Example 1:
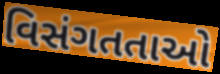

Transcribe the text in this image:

વિસંગતતાઓ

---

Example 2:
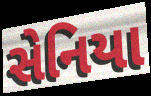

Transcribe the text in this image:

સેનિયા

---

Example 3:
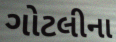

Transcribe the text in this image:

ગોટલીના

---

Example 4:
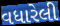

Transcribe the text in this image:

વધારેલી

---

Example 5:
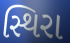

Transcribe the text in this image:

સ્થિરા